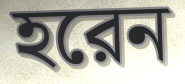
হরেন